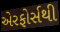
એરફોર્સથી